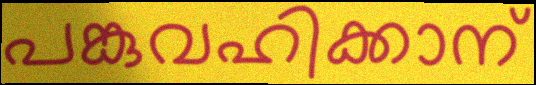
പങ്കുവഹിക്കാന്